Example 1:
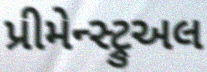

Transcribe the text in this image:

પ્રીમેન્સ્ટ્રુઅલ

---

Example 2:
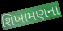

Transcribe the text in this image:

શિખામણના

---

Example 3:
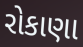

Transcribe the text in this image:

રોકાણા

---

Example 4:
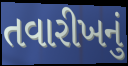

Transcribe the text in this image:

તવારીખનું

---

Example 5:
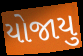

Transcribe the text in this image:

યોજાયુ